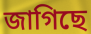
জাগিছে